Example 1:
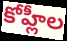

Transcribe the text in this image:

కోహ్లీల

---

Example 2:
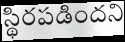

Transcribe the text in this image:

స్థిరపడిందని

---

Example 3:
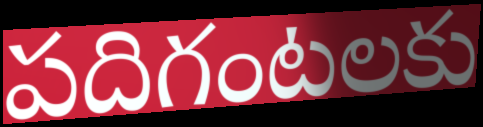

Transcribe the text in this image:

పదిగంటలకు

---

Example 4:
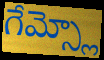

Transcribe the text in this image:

గేమ్స్లో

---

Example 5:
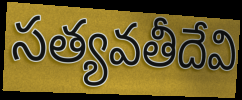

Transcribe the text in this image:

సత్యవతీదేవి